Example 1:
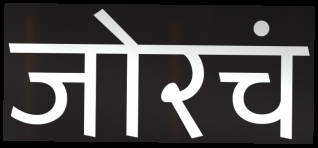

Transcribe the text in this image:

जोरचं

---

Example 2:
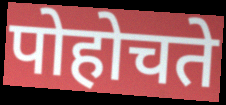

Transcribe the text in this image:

पोहोचते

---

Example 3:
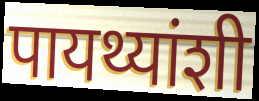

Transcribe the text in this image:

पायथ्यांशी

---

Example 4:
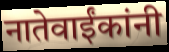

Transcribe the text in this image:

नातेवाईंकांनी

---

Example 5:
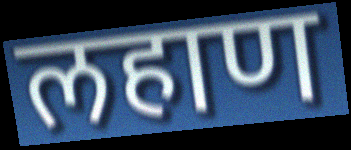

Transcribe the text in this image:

लहाण